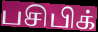
பசிபிக்